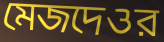
মেজদেওর